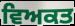
ਵਿਅਕਤ